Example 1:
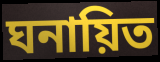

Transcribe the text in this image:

ঘনায়িত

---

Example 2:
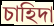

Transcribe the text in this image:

চাহিদা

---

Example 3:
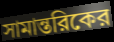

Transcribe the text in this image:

সামান্তরিকের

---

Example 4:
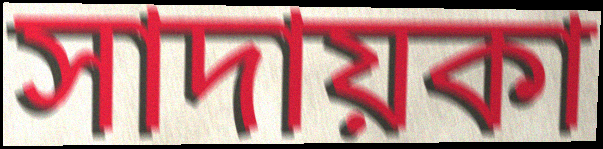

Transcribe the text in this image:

সাদায়কা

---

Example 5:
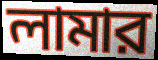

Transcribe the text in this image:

লামার